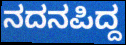
ನದನಪಿದ್ದ